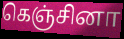
கெஞ்சினா